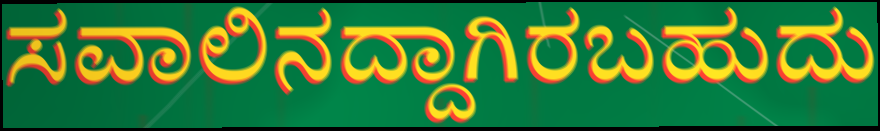
ಸವಾಲಿನದ್ದಾಗಿರಬಹುದು